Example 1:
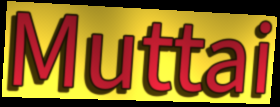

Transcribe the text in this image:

Muttai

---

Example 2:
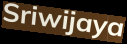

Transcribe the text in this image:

Sriwijaya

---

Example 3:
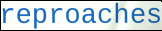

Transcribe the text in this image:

reproaches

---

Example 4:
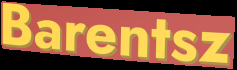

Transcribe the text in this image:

Barentsz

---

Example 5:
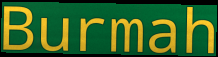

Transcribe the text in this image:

Burmah